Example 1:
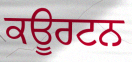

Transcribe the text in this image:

ਕਊਰਟਨ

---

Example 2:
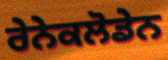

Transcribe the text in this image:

ਰੇਨੇਕਲੋਡੇਨ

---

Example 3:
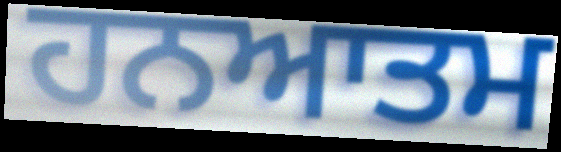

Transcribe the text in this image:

ਹਨਆਤਮ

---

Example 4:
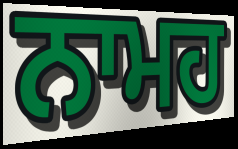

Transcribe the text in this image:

ਨਾਮਹ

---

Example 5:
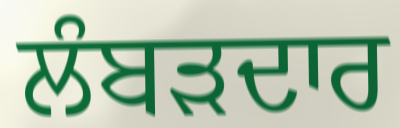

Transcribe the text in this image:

ਲੰਬੜਦਾਰ